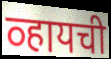
व्हायची